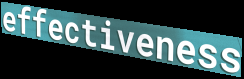
effectiveness